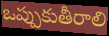
ఒప్పుకుతీరాలి